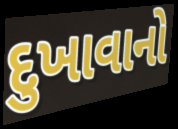
દુખાવાનો